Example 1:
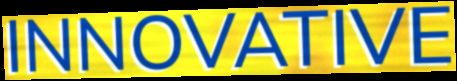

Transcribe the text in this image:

INNOVATIVE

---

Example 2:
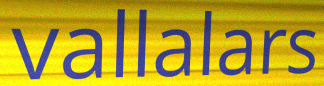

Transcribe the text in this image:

vallalars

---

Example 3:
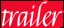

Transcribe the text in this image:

trailer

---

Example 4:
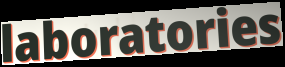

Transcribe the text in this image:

laboratories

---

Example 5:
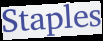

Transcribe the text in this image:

Staples